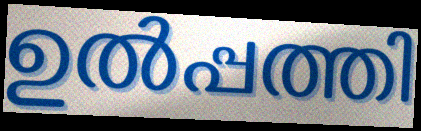
ഉൽപ്പത്തി